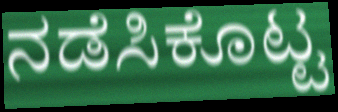
ನಡೆಸಿಕೊಟ್ಟ